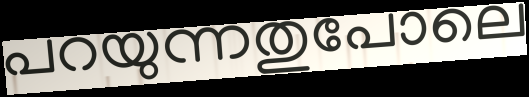
പറയുന്നതുപോലെ